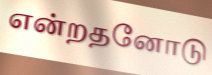
என்றதனோடு